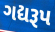
ગદ્યરૂપ